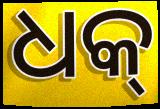
ଧକ୍